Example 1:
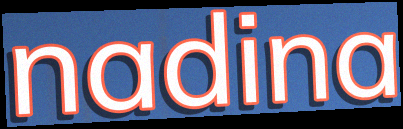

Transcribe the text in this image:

nadina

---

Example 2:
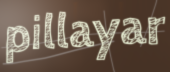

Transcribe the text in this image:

pillayar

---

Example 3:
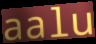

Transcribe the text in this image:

aalu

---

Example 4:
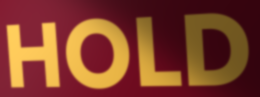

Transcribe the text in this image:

HOLD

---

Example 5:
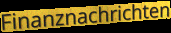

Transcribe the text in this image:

Finanznachrichten